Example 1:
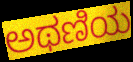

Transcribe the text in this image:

ಅಥಣಿಯ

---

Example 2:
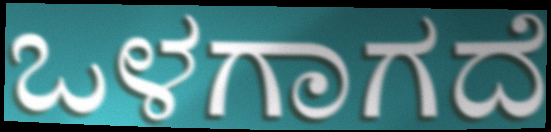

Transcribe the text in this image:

ಒಳಗಾಗದೆ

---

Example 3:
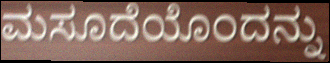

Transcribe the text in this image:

ಮಸೂದೆಯೊಂದನ್ನು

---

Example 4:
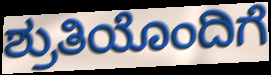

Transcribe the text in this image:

ಶ್ರುತಿಯೊಂದಿಗೆ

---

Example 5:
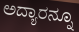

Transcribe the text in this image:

ಅದ್ಯಾರನ್ನೂ